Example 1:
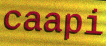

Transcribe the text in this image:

caapi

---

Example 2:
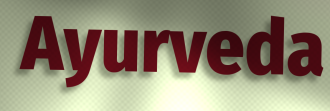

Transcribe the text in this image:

Ayurveda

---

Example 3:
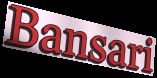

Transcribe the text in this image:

Bansari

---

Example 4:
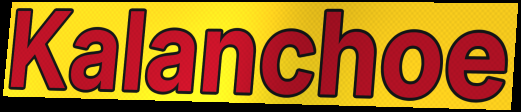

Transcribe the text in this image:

Kalanchoe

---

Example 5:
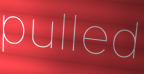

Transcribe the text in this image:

pulled